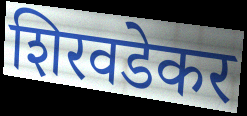
शिरवडेकर